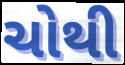
ચોથી